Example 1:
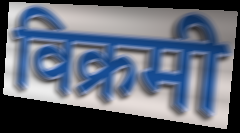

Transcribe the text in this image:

विक्रमी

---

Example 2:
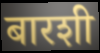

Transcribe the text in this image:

बारशी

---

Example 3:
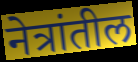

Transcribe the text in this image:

नेत्रांतील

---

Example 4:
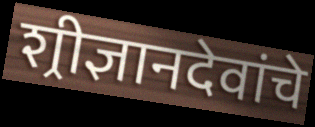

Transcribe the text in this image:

श्रीज्ञानदेवांचे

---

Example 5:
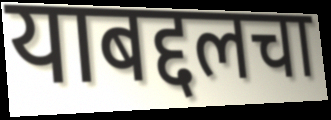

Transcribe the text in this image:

याबद्दलचा